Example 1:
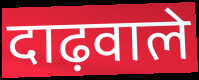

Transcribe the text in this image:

दाढ़वाले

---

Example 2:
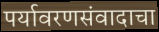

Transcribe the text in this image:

पर्यावरणसंवादाचा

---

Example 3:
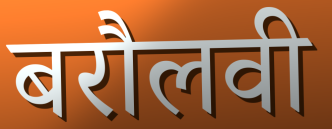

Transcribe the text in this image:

बरौलवी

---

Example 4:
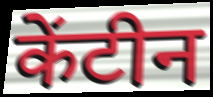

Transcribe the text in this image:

केंटीन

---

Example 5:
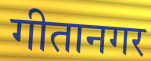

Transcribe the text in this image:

गीतानगर